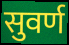
सुवर्ण